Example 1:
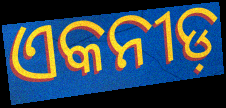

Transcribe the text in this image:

ଏକନୀଡ଼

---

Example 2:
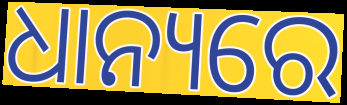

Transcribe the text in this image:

ଧାନ୍ୟରେ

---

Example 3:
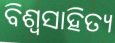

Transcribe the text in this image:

ବିଶ୍ଵସାହିତ୍ୟ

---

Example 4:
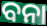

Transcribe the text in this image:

ବନା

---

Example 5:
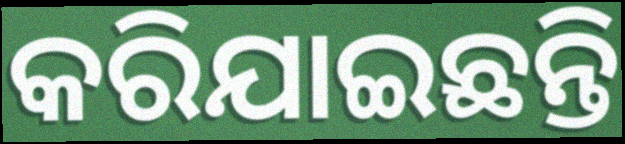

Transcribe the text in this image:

କରିଯାଇଛନ୍ତି